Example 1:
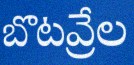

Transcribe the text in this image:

బొటవ్రేల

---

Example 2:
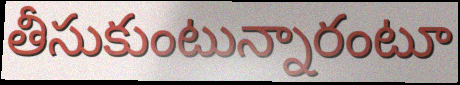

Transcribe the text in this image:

తీసుకుంటున్నారంటూ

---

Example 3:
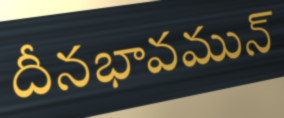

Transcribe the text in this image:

దీనభావమున్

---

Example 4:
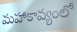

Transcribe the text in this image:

మహాకావ్యంలో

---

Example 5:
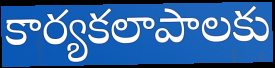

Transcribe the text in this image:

కార్యకలాపాలకు